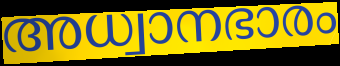
അധ്വാനഭാരം